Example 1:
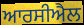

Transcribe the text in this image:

ਆਰਸੀਐਲ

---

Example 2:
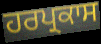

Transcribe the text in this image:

ਹਰਪ੍ਰਕਾਸ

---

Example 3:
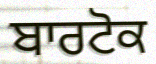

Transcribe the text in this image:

ਬਾਰਟੋਕ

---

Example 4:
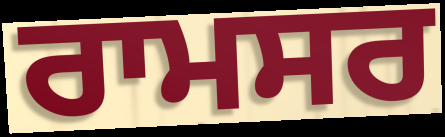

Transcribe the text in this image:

ਰਾਮਸਰ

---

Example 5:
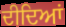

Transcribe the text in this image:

ਦੀਦਿਆਂ